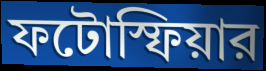
ফটোস্ফিয়ার